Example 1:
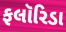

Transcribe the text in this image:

ફલૉરિડા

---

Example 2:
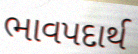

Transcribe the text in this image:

ભાવપદાર્થ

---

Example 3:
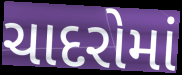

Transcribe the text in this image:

ચાદરોમાં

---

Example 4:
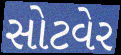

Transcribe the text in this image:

સોટવેર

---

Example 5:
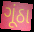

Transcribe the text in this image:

ગૂંઠા